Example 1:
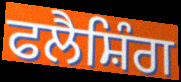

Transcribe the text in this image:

ਫਲੈਸ਼ਿੰਗ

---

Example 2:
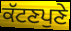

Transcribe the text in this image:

ਕੱਟਣਪੁਣੇ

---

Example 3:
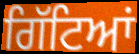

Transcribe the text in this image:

ਗਿੱਟਿਆਂ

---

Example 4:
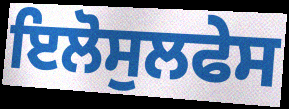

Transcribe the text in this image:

ਇਲੋਸੁਲਫੇਸ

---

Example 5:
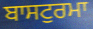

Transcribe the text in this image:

ਬਾਸਟੁਰਮਾ